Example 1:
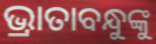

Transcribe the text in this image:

ଭ୍ରାତାବନ୍ଧୁଙ୍କୁ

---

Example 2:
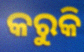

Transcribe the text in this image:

କରୁକି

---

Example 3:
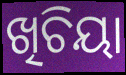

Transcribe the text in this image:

ଖିଚିୟା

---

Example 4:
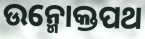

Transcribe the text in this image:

ଉନ୍ମୋକ୍ତପଥ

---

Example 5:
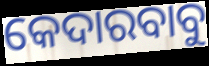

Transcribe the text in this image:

କେଦାରବାବୁ